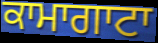
ਕਾਮਾਗਾਟਾ